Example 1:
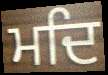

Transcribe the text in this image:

ਮਦਿ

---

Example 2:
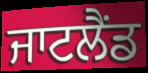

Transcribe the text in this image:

ਜਾਟਲੈਂਡ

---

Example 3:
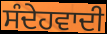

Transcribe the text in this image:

ਸੰਦੇਹਵਾਦੀ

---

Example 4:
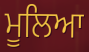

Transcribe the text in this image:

ਮੂਲਿਆ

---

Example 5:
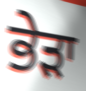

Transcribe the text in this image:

ਭੇੜਾ